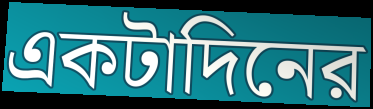
একটাদিনের